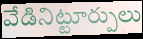
వేడినిట్టూర్పులు